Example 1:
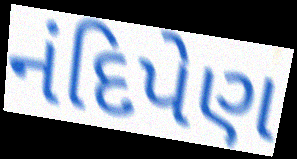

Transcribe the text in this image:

નંદિપેણ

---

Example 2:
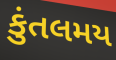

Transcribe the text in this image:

કુંતલમય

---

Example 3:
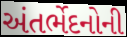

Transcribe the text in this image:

અંતર્ભેદનોની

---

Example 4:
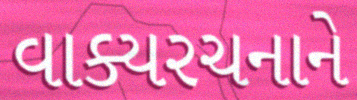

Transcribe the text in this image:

વાક્યરચનાને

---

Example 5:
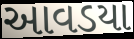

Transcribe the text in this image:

આવડયા